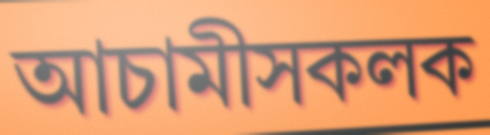
আচামীসকলক